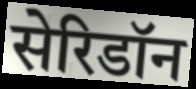
सेरिडॉन